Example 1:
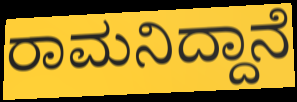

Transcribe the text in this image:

ರಾಮನಿದ್ದಾನೆ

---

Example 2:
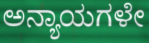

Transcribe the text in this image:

ಅನ್ಯಾಯಗಳೇ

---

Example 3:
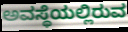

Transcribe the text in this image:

ಅವಸ್ಥೆಯಲ್ಲಿರುವ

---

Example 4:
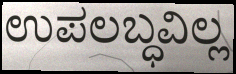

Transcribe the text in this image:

ಉಪಲಬ್ಧವಿಲ್ಲ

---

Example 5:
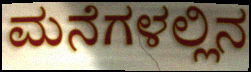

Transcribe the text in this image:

ಮನೆಗಳಲ್ಲಿನ